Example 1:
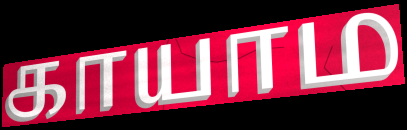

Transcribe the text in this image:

காயாம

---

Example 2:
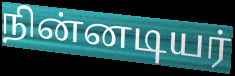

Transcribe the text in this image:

நின்னடியர்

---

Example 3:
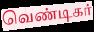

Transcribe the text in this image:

வெண்டிகர்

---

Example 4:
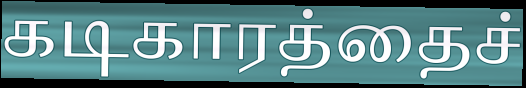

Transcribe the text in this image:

கடிகாரத்தைச்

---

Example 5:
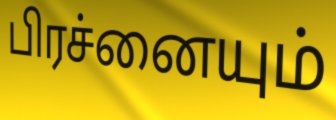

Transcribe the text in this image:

பிரச்னையும்